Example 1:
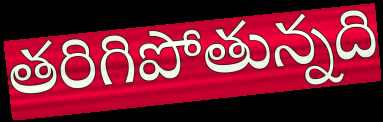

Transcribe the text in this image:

తరిగిపోతున్నది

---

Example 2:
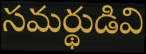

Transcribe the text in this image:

సమర్థుడివి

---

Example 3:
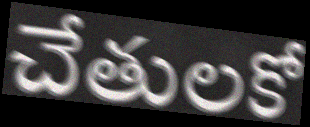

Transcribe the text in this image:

చేతులకో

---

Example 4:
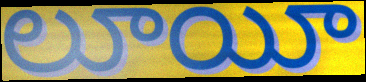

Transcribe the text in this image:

లూయీ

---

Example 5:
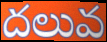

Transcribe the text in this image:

దలువ